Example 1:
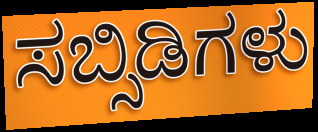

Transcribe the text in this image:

ಸಬ್ಸಿಡಿಗಳು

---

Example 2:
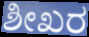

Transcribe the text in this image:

ಶೀಖರ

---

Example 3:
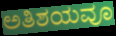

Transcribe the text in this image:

ಅತಿಶಯವೂ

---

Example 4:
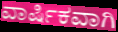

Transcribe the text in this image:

ವಾರ್ಷಿಕವಾಗಿ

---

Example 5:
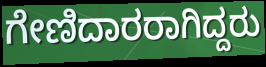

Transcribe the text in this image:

ಗೇಣಿದಾರರಾಗಿದ್ದರು